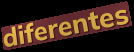
diferentes